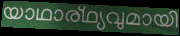
യാഥാര്ഥ്യവുമായി